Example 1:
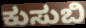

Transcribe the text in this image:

ಕುಸುಬಿ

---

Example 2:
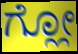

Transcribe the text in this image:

ಗ್ಲೋ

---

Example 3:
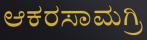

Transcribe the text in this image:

ಆಕರಸಾಮಗ್ರಿ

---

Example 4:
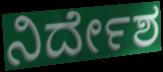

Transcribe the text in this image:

ನಿರ್ದೇಶ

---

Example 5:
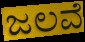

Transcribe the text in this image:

ಜಲವೆ